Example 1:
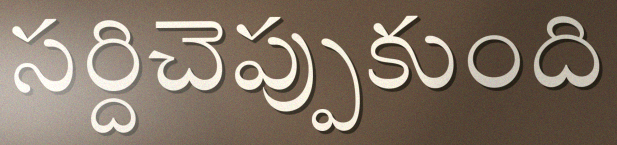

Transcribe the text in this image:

సర్దిచెప్పుకుంది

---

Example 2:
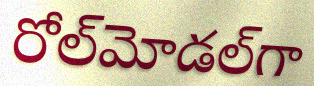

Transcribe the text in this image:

రోల్‌మోడల్‌గా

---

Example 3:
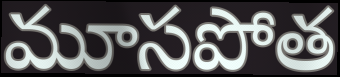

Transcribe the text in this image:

మూసపోత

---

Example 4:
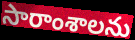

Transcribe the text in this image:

సారాంశాలను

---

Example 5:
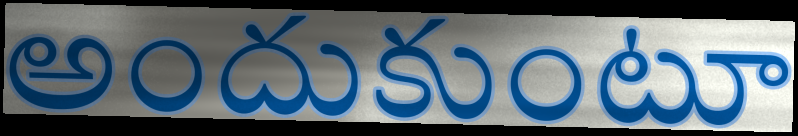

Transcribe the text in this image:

అందుకుంటూ